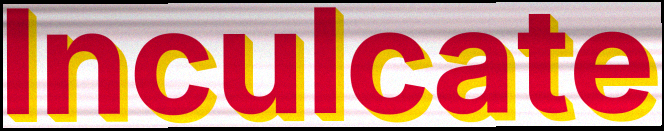
Inculcate